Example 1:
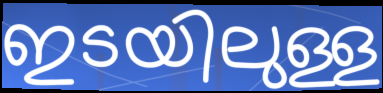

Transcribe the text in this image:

ഇടയിലുള്ള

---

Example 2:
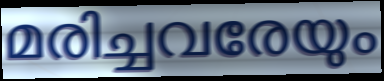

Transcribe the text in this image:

മരിച്ചവരേയും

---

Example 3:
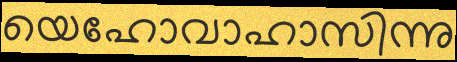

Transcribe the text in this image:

യെഹോവാഹാസിന്നു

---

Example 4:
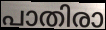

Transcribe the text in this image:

പാതിരാ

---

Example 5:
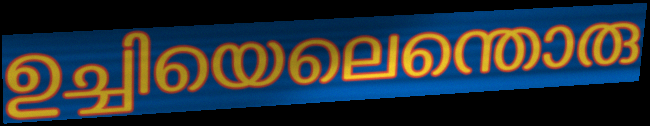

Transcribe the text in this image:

ഉച്ചിയെലെന്തൊരു